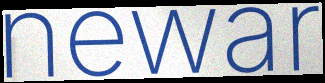
newar